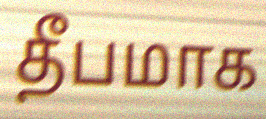
தீபமாக